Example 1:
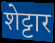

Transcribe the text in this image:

शेट्टार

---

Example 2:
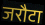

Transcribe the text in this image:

जरौटा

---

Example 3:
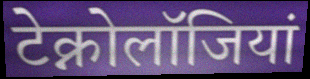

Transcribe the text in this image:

टेक्नोलॉजियां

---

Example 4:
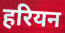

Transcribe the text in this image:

हरियन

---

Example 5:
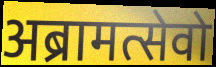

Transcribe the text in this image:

अब्रामत्सेवो